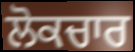
ਲੋਕਚਾਰ